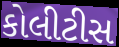
કોલીટીસ